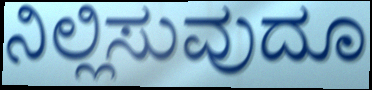
ನಿಲ್ಲಿಸುವುದೂ